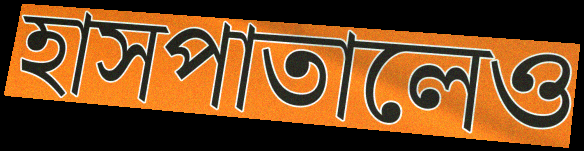
হাসপাতালেও